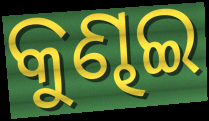
କୁଣ୍ଢଇ